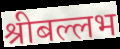
श्रीबल्लभ